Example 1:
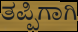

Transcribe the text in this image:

ತಪ್ಪಿಗಾಗಿ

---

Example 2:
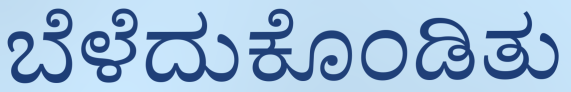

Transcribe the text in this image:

ಬೆಳೆದುಕೊಂಡಿತು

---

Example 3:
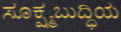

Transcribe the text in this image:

ಸೂಕ್ಷ್ಮಬುದ್ಧಿಯ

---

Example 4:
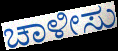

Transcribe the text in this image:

ಚಾಳೀಸು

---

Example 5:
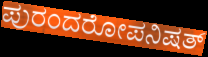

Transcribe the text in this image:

ಪುರಂದರೋಪನಿಷತ್